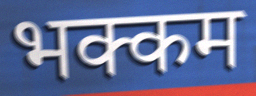
भक्कम